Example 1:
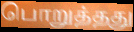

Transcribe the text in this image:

பொறுத்தது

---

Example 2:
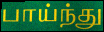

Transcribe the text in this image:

பாய்ந்து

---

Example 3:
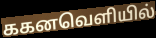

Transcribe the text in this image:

ககனவெளியில்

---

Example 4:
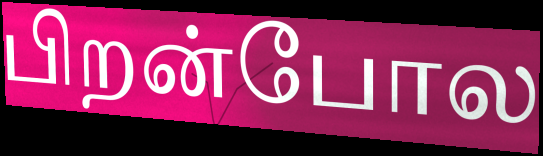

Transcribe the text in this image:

பிறன்போல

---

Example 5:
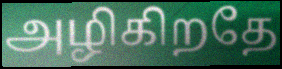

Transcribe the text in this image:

அழிகிறதே